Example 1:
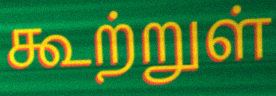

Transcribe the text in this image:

கூற்றுள்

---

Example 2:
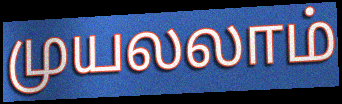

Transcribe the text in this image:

முயலலாம்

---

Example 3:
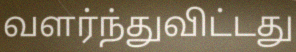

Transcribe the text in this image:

வளர்ந்துவிட்டது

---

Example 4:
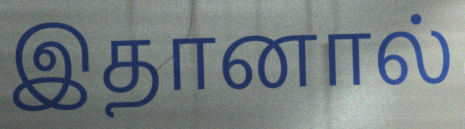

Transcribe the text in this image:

இதானால்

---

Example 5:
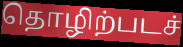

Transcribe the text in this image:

தொழிற்படச்